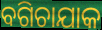
ବଗିଚାଯାକ